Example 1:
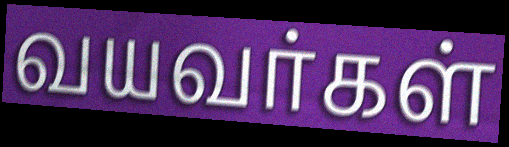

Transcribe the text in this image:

வயவர்கள்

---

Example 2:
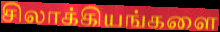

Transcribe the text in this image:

சிலாக்கியங்களை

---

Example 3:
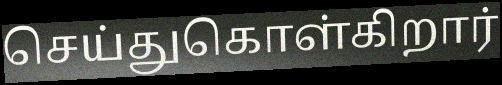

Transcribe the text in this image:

செய்துகொள்கிறார்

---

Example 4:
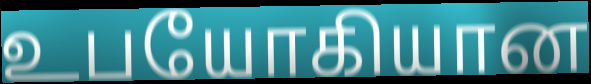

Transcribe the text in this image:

உபயோகியான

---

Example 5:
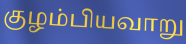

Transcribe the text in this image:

குழம்பியவாறு